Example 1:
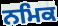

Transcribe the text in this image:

ਨਮਿਕ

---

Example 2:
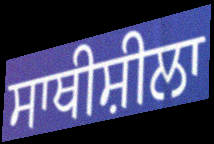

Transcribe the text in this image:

ਸਾਥੀਸ਼ੀਲਾ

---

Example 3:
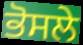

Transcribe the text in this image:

ਭੋਸਲੇ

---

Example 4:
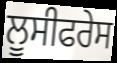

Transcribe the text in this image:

ਲੂਸੀਫਰੇਸ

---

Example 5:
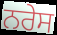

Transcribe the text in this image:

ਨਰੇਸ